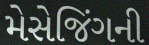
મેસેજિંગની